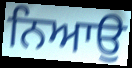
ਨਿਆਉ